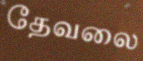
தேவலை